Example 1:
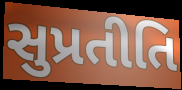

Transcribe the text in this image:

સુપ્રતીતિ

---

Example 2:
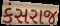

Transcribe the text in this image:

કંસરાજ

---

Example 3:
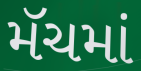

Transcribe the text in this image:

મૅચમાં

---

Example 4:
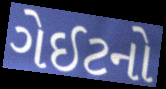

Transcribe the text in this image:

ગેઈટનો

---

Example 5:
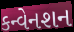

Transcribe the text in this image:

કન્વેનશન